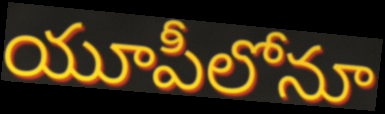
యూపీలోనూ